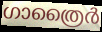
ഗാത്രൈർ